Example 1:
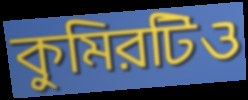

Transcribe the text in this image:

কুমিরটিও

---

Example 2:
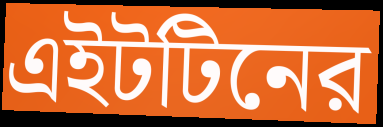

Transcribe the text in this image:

এইটটিনের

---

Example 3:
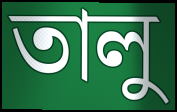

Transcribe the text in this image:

তালু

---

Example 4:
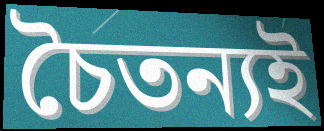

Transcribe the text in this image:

চৈতন্যই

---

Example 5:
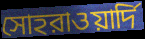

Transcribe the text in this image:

সোহরাওয়ার্দি